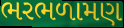
ભરભળામણ